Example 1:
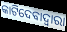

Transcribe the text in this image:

କାଟିଦେବାଦ୍ଵାରା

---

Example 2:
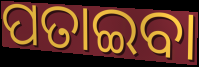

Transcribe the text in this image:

ପତାଇବା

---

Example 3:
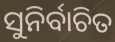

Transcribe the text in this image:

ସୁନିର୍ବାଚିତ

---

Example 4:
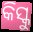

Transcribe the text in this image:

କିସ୍କୁ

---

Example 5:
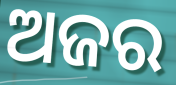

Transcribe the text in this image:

ଅଜର